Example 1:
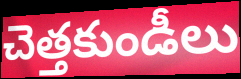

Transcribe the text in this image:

చెత్తకుండీలు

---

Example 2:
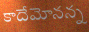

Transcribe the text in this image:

కాదేమోనన్న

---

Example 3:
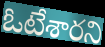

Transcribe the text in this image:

ఓటేశారని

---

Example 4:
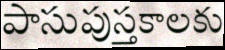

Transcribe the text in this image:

పాసుపుస్తకాలకు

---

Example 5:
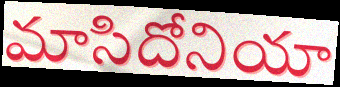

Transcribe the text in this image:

మాసిదోనియా